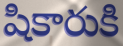
షికారుకి